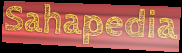
Sahapedia